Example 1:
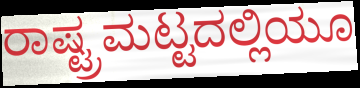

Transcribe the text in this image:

ರಾಷ್ಟ್ರಮಟ್ಟದಲ್ಲಿಯೂ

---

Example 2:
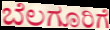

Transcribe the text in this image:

ಬೆಲಗೂರಿಗೆ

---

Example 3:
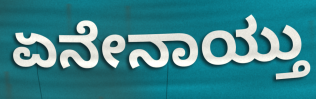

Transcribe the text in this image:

ಏನೇನಾಯ್ತು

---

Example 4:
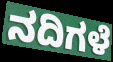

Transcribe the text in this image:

ನದಿಗಳೆ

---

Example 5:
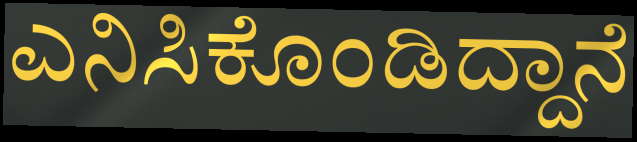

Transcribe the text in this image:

ಎನಿಸಿಕೊಂಡಿದ್ದಾನೆ